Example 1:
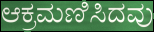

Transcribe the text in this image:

ಆಕ್ರಮಣಿಸಿದವು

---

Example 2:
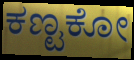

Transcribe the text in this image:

ಕಣ್ಟಕೋ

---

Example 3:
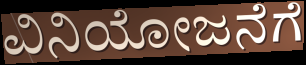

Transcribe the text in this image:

ವಿನಿಯೋಜನೆಗೆ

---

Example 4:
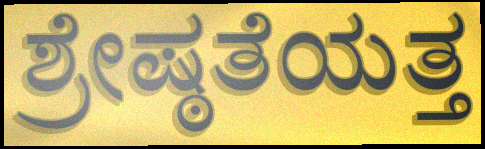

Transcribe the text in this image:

ಶ್ರೇಷ್ಠತೆಯತ್ತ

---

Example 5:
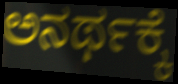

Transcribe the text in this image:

ಅನರ್ಥಕ್ಕೆ